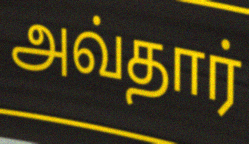
அவ்தார்